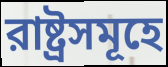
রাষ্ট্রসমূহে